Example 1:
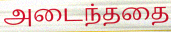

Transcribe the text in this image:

அடைந்ததை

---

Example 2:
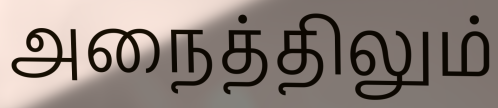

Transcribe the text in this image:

அநைத்திலும்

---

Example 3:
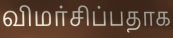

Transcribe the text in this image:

விமர்சிப்பதாக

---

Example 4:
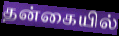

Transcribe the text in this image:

தன்கையில்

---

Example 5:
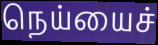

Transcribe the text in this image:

நெய்யைச்